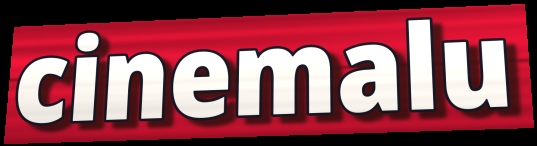
cinemalu